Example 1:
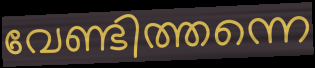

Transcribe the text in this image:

വേണ്ടിത്തന്നെ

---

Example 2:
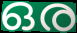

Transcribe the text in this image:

ഒര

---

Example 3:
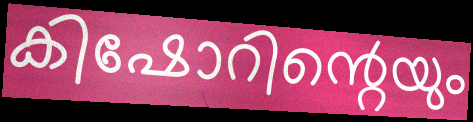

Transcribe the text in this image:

കിഷോറിന്റെയും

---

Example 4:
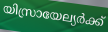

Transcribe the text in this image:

യിസ്രായേല്യർക്ക്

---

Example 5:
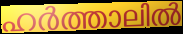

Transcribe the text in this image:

ഹർത്താലിൽ